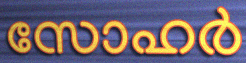
സോഹർ